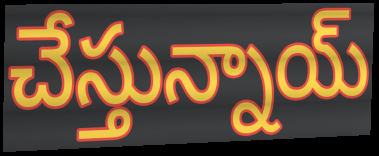
చేస్తున్నాయ్